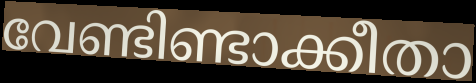
വേണ്ടിണ്ടാക്കീതാ